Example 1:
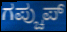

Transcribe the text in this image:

ಗಪ್ಚುಪ್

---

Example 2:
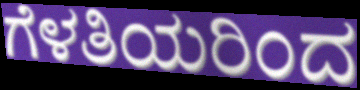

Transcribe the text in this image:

ಗೆಳತಿಯರಿಂದ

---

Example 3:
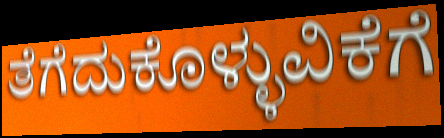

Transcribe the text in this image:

ತೆಗೆದುಕೊಳ್ಳುವಿಕೆಗೆ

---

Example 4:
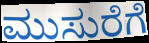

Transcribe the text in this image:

ಮುಸುರೆಗೆ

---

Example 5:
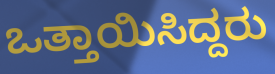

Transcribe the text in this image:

ಒತ್ತಾಯಿಸಿದ್ದರು